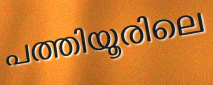
പത്തിയൂരിലെ